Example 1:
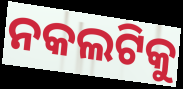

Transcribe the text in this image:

ନକଲଟିକୁ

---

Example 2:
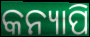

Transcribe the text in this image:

କନ୍ୟାପି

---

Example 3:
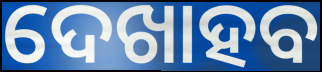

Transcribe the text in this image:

ଦେଖାହବ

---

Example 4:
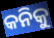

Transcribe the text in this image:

କନିକୁ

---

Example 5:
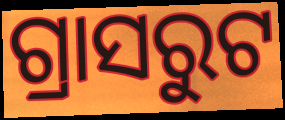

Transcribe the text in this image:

ଗ୍ରାସରୁଟ